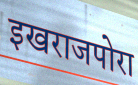
इखराजपोरा